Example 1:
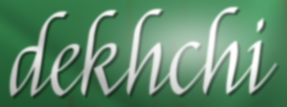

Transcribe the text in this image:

dekhchi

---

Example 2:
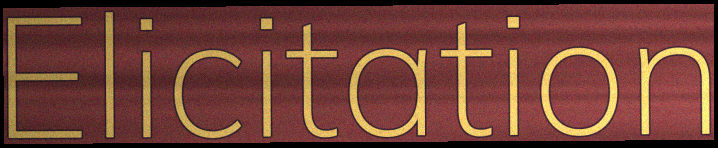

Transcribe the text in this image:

Elicitation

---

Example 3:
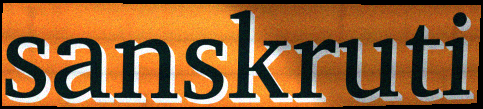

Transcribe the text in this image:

sanskruti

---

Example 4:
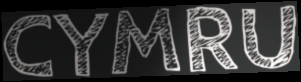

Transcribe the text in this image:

CYMRU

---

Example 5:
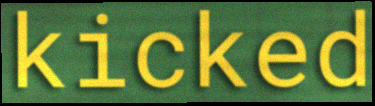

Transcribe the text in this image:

kicked